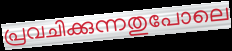
പ്രവചിക്കുന്നതുപോലെ